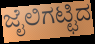
ಜೈಲಿಗಟ್ಟಿದ